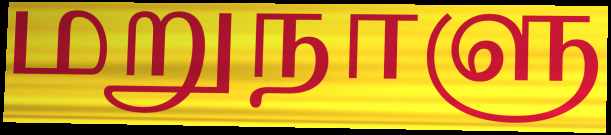
மறுநாளு